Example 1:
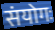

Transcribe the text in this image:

संयोगः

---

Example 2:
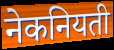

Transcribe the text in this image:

नेकनियती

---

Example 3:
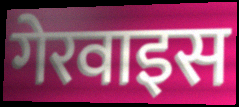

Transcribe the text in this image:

गेरवाइस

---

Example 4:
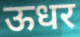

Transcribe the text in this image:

ऊधर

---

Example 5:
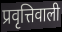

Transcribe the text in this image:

प्रवृत्तिवाली